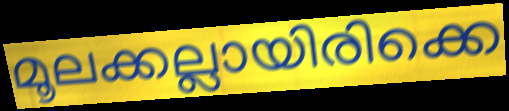
മൂലക്കല്ലായിരിക്കെ